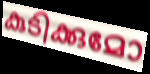
കുടിക്കുമോ